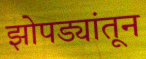
झोपड्यांतून